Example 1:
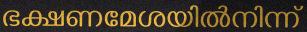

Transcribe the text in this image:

ഭക്ഷണമേശയിൽനിന്ന്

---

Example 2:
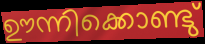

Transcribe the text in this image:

ഊന്നിക്കൊണ്ടു്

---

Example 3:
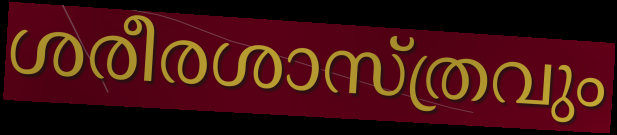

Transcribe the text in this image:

ശരീരശാസ്ത്രവും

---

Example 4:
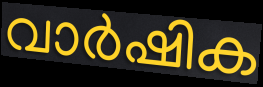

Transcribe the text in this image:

വാർഷിക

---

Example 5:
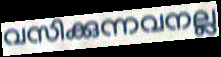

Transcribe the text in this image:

വസിക്കുന്നവനല്ല